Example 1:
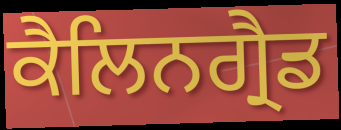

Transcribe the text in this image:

ਕੈਲਿਨਗ੍ਰੈਡ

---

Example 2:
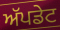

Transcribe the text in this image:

ਅੱਪਡੇਟ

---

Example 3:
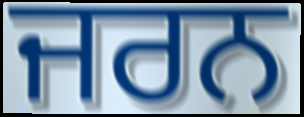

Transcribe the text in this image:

ਜਰਨ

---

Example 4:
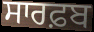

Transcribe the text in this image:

ਸਾਰਫ਼ਬ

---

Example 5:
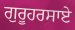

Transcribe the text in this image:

ਗੁਰੂਹਰਸਾਏ